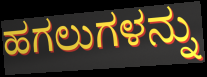
ಹಗಲುಗಳನ್ನು